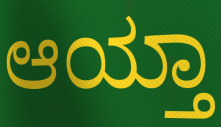
ಆಯ್ತಾ